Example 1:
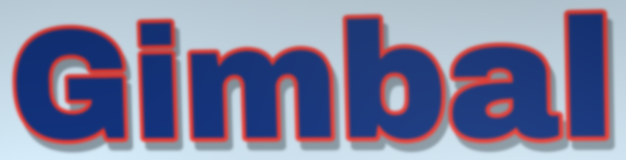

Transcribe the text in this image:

Gimbal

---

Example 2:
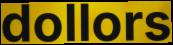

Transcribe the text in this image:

dollors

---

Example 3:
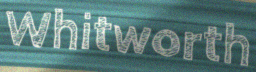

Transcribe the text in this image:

Whitworth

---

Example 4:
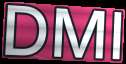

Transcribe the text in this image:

DMI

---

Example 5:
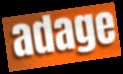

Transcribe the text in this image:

adage